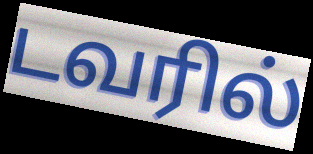
டவரில்